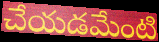
చేయడమేంటి